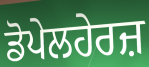
ਡੋਪੇਲਹੇਰਜ਼